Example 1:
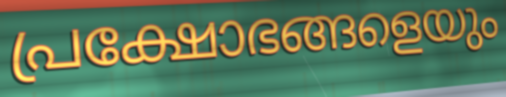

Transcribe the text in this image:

പ്രക്ഷോഭങ്ങളെയും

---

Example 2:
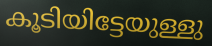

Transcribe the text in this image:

കൂടിയിട്ടേയുള്ളു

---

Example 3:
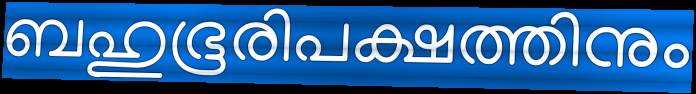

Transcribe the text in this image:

ബഹുഭൂരിപക്ഷത്തിനും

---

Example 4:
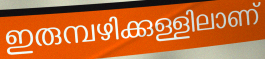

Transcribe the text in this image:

ഇരുമ്പഴിക്കുള്ളിലാണ്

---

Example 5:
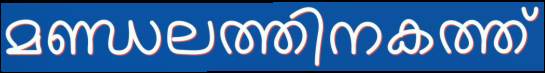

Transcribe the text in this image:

മണ്ഡലത്തിനകത്ത്